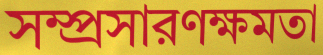
সম্প্রসারণক্ষমতা